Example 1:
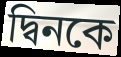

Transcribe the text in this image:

দ্বিনকে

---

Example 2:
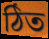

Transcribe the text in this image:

ঠিত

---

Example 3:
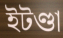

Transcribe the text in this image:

ইটণ্ডা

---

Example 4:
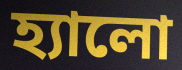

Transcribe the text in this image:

হ্যালো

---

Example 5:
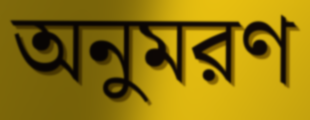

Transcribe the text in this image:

অনুমরণ